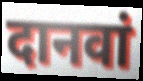
दानवां